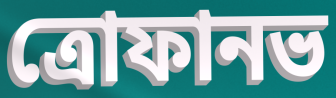
ত্রোফানভ